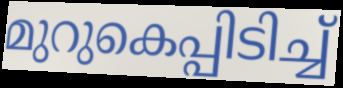
മുറുകെപ്പിടിച്ച്